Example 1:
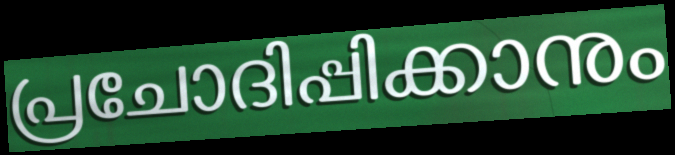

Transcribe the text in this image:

പ്രചോദിപ്പിക്കാനും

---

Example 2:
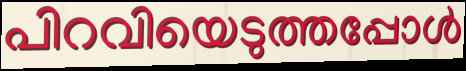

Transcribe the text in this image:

പിറവിയെടുത്തപ്പോൾ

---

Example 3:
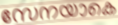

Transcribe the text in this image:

സേനയാകെ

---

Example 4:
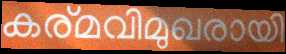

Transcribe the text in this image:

കര്മവിമുഖരായി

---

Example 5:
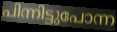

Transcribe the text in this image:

പിന്നിട്ടുപോന്ന